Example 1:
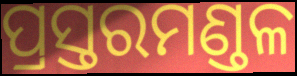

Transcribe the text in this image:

ପ୍ରସ୍ତରମଣ୍ଡଳ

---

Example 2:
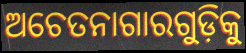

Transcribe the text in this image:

ଅଚେତନାଗାରଗୁଡ଼ିକୁ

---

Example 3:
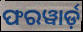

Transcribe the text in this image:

ଫରୱାର୍ଡ଼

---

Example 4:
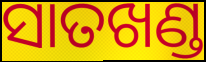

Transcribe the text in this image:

ସାତଖଣ୍ଡ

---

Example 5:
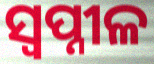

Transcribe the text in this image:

ସ୍ୱପ୍ନୀଳ